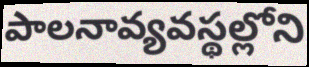
పాలనావ్యవస్థల్లోని